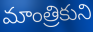
మాంత్రికుని